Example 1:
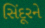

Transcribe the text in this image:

સિંદૂરને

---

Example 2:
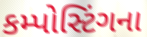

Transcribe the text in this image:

કમ્પોસ્ટિંગના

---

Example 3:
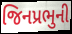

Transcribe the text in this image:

જિનપ્રભુની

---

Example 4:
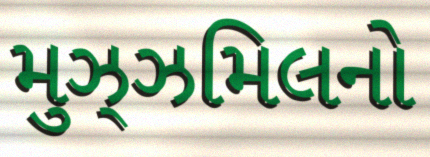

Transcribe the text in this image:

મુઝ્ઝમિલનો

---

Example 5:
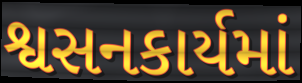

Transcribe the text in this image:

શ્વસનકાર્યમાં